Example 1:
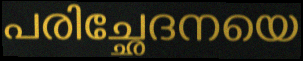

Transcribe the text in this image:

പരിച്ഛേദനയെ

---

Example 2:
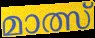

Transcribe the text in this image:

മാത്സ്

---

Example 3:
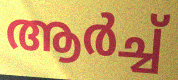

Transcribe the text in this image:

ആർച്ച്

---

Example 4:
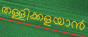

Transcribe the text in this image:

തള്ളിക്കളയാൻ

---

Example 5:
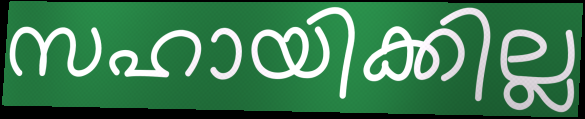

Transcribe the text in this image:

സഹായിക്കില്ല